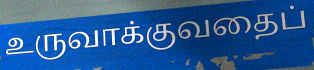
உருவாக்குவதைப்